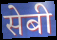
सेबी